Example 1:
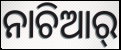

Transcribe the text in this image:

ନାଚିଆର୍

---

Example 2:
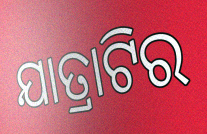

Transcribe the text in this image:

ଯାତ୍ରାଟିର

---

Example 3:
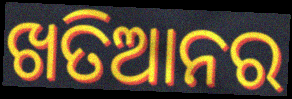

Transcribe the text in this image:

ଖତିଆନର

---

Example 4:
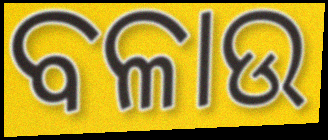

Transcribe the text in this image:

ବଳାଉ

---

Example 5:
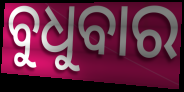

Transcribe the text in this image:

ବୁଧୁବାର